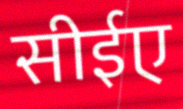
सीईए